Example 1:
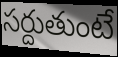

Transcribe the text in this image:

సర్దుతుంటే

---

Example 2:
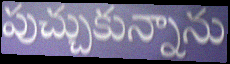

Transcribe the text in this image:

పుచ్చుకున్నాను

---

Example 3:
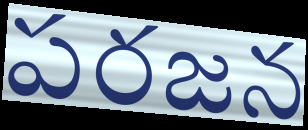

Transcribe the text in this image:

పరజన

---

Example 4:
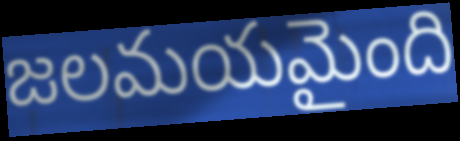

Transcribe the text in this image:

జలమయమైంది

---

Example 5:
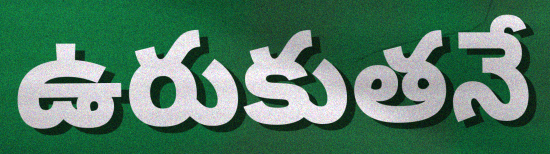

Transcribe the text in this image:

ఉరుకుతనే